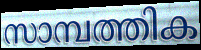
സാമ്പത്തിക